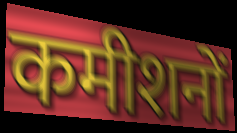
कमीशनों